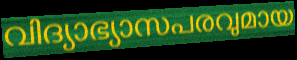
വിദ്യാഭ്യാസപരവുമായ